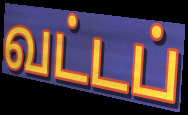
வட்டப்